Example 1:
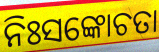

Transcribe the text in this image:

ନିଃସଙ୍କୋଚତା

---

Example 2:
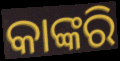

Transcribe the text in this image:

କାଙ୍କରି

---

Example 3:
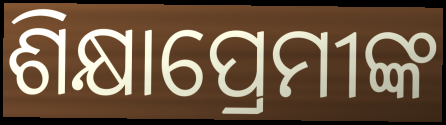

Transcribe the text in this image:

ଶିକ୍ଷାପ୍ରେମୀଙ୍କ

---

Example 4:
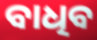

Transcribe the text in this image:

ବାଧିବ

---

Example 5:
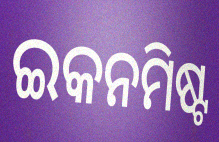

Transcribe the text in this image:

ଇକନମିଷ୍ଟ